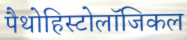
पैथोहिस्टोलॉजिकल